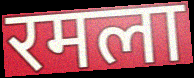
रमला